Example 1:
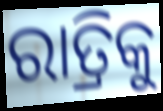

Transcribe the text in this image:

ରାତ୍ରିକୁ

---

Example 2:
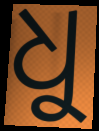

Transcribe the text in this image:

ଧୁ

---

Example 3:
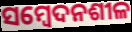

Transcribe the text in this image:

ସମ୍ବେଦନଶୀଳ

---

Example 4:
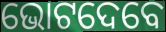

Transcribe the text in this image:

ଭୋଟଦେବେ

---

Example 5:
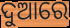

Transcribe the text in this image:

ଦୁଆରେ